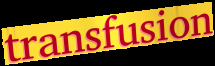
transfusion